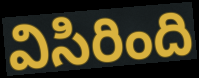
విసిరింది